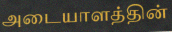
அடையாளத்தின்